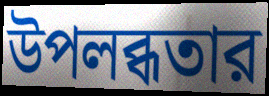
উপলব্ধতার